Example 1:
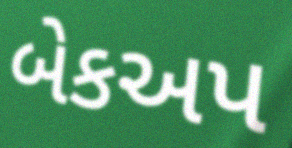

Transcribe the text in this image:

બેકઅપ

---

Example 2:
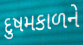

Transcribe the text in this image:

દુષમકાળને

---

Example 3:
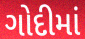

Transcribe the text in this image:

ગોદીમાં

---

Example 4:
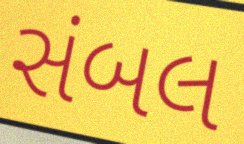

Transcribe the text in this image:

સંબલ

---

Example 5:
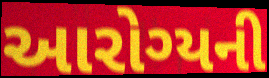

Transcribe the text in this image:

આરોગ્યની